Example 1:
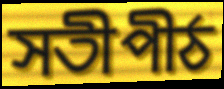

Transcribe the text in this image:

সতীপীঠ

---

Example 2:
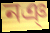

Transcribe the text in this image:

নঞ্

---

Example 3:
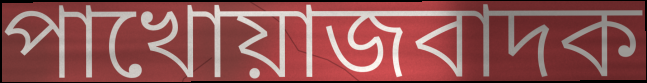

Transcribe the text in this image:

পাখোয়াজবাদক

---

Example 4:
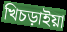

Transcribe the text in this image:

খিচড়াইয়া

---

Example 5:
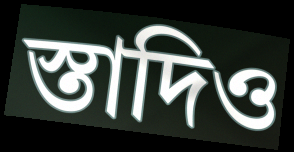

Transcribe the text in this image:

স্তাদিও